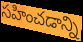
సహించడాన్ని